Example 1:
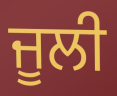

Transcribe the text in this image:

ਜੂਲੀ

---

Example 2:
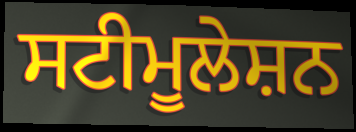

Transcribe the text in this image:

ਸਟੀਮੂਲੇਸ਼ਨ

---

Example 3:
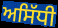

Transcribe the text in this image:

ਅਸਿੱਧੀ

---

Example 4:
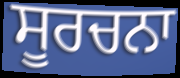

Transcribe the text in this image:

ਸੂਰਚਨਾ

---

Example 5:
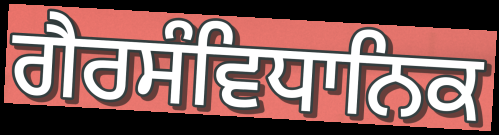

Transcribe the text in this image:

ਗੈਰਸੰਵਿਧਾਨਿਕ